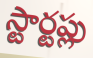
స్టార్టప్లు